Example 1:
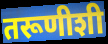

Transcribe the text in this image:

तरूणीशी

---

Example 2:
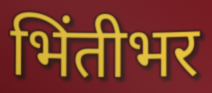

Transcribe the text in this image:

भिंतीभर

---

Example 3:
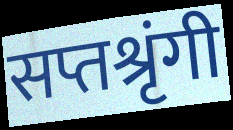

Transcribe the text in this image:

सप्तश्रृंगी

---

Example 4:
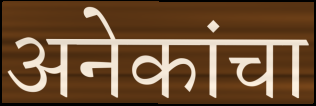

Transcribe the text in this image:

अनेकांचा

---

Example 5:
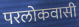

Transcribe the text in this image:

परलोकवासी